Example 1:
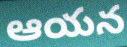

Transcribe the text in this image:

ఆయన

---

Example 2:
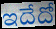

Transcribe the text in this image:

ఇదేదో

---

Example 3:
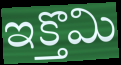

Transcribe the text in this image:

ఇక్తొమి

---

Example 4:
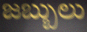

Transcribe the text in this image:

జబ్బులు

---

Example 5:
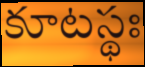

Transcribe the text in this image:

కూటస్థః